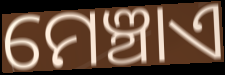
ମେଞ୍ଚାଏ